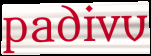
padivu